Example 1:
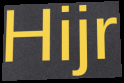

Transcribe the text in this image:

Hijr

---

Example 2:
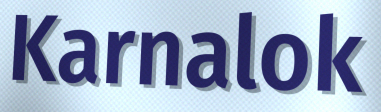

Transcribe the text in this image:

Karnalok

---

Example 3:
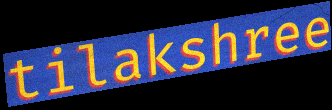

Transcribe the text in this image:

tilakshree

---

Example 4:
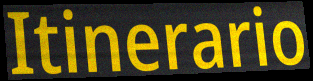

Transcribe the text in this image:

Itinerario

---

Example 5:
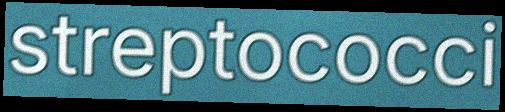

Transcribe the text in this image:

streptococci